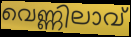
വെണ്ണിലാവ്